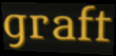
graft